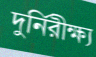
দুর্নিরীক্ষ্য